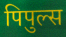
पिपुल्स